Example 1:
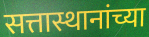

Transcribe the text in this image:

सत्तास्थानांच्या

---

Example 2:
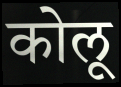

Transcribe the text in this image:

कोलू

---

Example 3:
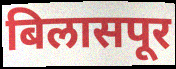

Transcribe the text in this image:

बिलासपूर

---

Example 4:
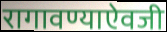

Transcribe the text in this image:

रागावण्याऐवजी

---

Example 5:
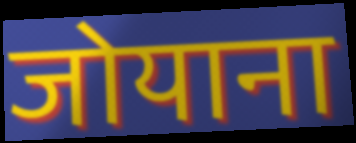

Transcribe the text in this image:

जोयाना